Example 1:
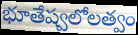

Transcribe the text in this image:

భూతేష్వలోలత్వం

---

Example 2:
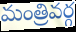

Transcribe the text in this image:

మంత్రివర్గ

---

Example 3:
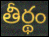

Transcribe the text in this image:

తీర్థం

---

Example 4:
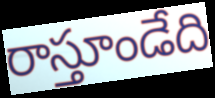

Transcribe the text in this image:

రాస్తూండేది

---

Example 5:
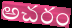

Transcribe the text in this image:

అచరం